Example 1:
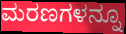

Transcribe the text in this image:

ಮರಣಗಳನ್ನೂ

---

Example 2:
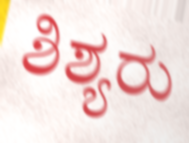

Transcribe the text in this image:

ಶಿಶ್ಯರು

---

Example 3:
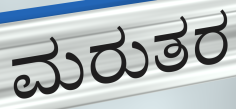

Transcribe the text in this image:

ಮರುತರ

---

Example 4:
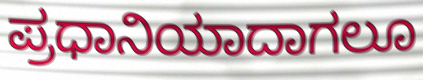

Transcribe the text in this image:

ಪ್ರಧಾನಿಯಾದಾಗಲೂ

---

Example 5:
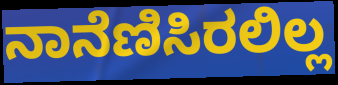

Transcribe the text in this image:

ನಾನೆಣಿಸಿರಲಿಲ್ಲ